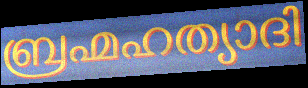
ബ്രഹ്മഹത്യാദി